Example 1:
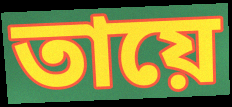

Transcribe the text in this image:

তায়ে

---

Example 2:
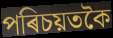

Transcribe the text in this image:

পৰিচয়তকৈ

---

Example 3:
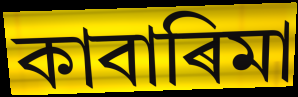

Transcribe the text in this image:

কাবাৰিমা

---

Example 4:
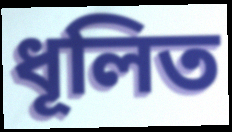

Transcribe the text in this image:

ধূলিত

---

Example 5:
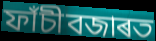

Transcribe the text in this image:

ফাঁচীবজাৰত